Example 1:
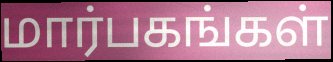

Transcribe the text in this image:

மார்பகங்கள்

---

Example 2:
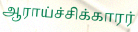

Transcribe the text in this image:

ஆராய்ச்சிக்காரர்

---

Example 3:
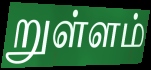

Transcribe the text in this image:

றுள்ளம்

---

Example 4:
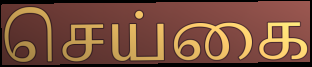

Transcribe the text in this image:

செய்கை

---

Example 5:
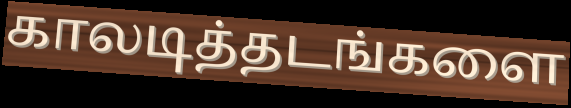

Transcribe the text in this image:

காலடித்தடங்களை